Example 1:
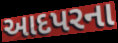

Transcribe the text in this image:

આદપરના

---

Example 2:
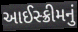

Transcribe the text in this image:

આઈસ્ક્રીમનું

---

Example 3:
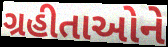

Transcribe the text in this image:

ગ્રહીતાઓને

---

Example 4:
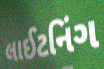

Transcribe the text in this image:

લાઈટનિંગ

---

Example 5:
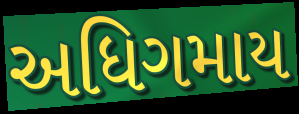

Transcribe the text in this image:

અધિગમાય